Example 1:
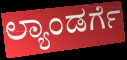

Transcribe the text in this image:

ಲ್ಯಾಂಡರ್ಗೆ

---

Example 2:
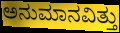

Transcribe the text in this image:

ಅನುಮಾನವಿತ್ತು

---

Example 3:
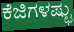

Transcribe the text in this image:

ಕೆಜಿಗಳಷ್ಟು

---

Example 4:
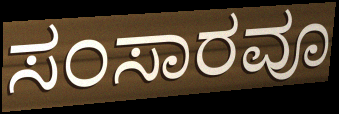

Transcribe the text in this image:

ಸಂಸಾರವೂ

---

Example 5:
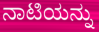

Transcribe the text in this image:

ನಾಟಿಯನ್ನು